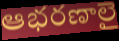
ఆభరణాలై